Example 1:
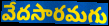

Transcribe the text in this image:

వేదసారమగు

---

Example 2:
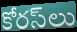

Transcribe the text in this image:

కోరస్‌లు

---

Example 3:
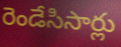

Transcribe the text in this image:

రెండేసిసార్లు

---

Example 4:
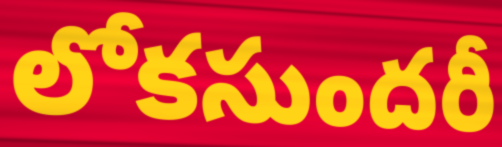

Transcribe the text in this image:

లోకసుందరీ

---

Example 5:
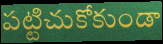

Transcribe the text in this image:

పట్టిచుకోకుండా